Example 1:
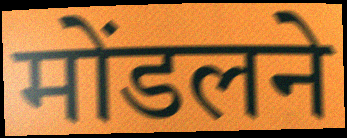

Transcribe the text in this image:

मोंडलने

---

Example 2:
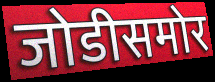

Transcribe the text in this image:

जोडीसमोर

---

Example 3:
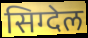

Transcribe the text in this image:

सिग्देल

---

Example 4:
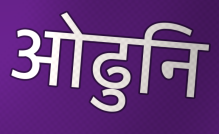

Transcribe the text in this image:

ओढुनि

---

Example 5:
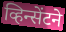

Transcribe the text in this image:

व्हिन्सेंटने